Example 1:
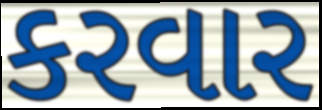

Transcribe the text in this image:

કરવાર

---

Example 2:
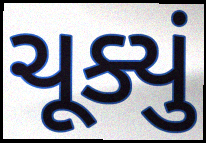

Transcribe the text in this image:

ચૂક્યું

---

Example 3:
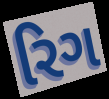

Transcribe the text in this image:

રિગ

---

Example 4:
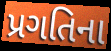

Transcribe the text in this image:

પ્રગતિના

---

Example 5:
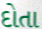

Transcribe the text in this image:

દોતા